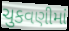
ચુકવણીમાં